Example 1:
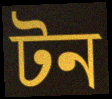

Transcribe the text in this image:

টন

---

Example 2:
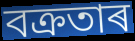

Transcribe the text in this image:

বক্ৰতাৰ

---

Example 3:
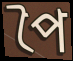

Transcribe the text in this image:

পৈ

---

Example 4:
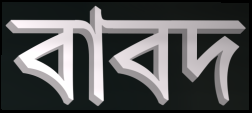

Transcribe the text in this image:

বাবদ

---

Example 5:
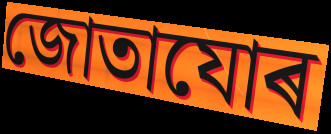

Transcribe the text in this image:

জোতাযোৰ